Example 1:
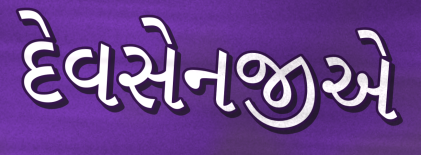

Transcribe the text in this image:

દેવસેનજીએ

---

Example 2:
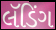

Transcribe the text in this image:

લૅડિંગ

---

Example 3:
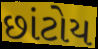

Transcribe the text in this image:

છાંટોય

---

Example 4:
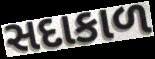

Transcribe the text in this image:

સદાકાળ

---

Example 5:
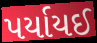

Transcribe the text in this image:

પર્યાયઈ